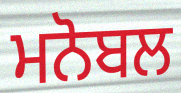
ਮਨੋਬਲ